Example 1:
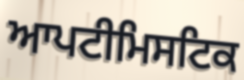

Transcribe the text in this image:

ਆਪਟੀਮਿਸਟਿਕ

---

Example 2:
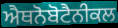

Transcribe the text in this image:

ਐਥਨੋਬੋਟੈਨੀਕਲ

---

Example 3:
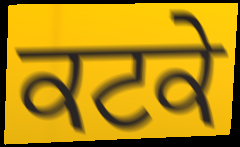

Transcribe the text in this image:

ਕਟਕੇ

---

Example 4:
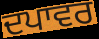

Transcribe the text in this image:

ਦਪਾਵਰ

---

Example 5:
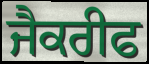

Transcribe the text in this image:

ਜੈਕਰੀਫ